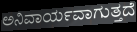
ಅನಿವಾರ್ಯವಾಗುತ್ತದೆ